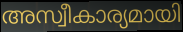
അസ്വീകാര്യമായി